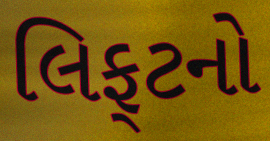
લિફ્‌ટનો